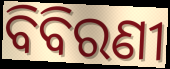
ବିବିରଣୀ